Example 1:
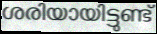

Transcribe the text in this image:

ശരിയായിട്ടുണ്ട്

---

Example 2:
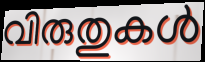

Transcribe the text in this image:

വിരുതുകൾ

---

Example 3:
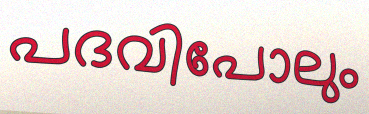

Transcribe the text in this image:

പദവിപോലും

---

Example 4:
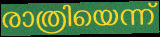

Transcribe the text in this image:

രാത്രിയെന്ന്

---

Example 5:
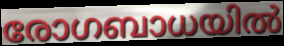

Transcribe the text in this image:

രോഗബാധയിൽ